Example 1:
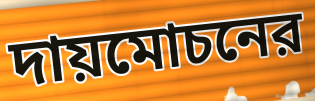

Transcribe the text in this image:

দায়মোচনের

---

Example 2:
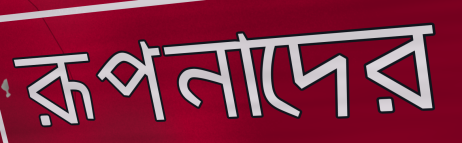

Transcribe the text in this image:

রূপনাদের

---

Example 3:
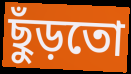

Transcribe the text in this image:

ছুঁড়তো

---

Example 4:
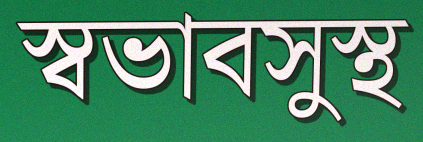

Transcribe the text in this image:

স্বভাবসুস্থ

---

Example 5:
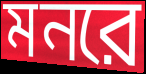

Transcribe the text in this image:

মনরে